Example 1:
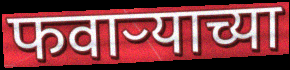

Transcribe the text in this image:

फवाऱ्याच्या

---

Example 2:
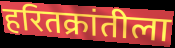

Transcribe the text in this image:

हरितक्रांतीला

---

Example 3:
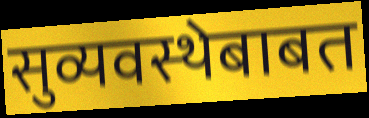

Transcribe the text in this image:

सुव्यवस्थेबाबत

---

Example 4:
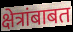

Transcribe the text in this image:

क्षेत्रांबाबत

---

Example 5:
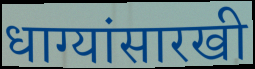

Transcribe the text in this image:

धाग्यांसारखी